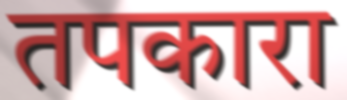
तपकारा